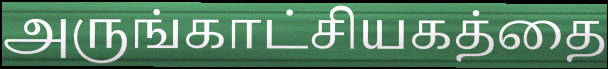
அருங்காட்சியகத்தை